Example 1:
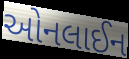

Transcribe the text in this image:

ઓનલાઈન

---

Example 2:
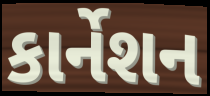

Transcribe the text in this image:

કાર્નેશન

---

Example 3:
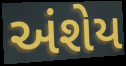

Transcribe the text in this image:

અંશેય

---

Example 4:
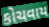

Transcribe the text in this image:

કોચવાય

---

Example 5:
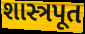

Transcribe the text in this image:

શાસ્ત્રપૂત